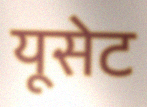
यूसेट